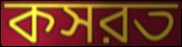
কসরত